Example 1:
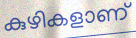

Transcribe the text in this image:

കുഴികളാണ്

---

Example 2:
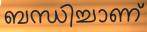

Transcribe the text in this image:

ബന്ധിച്ചാണ്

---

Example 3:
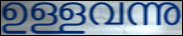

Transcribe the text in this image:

ഉള്ളവന്നു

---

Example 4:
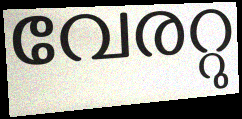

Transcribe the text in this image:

വേരറ്റു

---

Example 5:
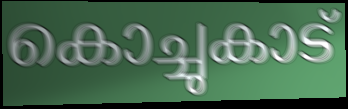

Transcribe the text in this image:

കൊച്ചുകാട്